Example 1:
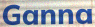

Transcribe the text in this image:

Ganna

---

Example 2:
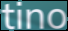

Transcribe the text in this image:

tino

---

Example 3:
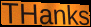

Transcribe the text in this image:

THanks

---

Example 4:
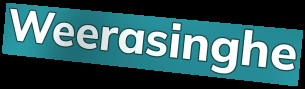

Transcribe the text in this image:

Weerasinghe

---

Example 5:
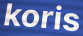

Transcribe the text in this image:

koris